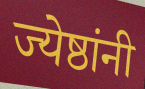
ज्येष्ठांनी